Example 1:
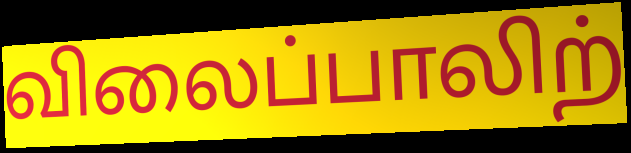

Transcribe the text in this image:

விலைப்பாலிற்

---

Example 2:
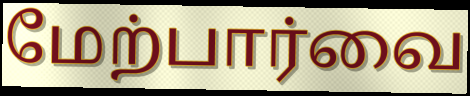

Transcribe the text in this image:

மேற்பார்வை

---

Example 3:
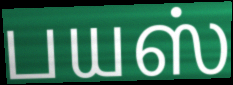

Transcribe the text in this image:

பயஸ்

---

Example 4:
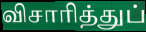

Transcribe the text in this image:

விசாரித்துப்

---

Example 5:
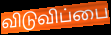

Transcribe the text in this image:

விடுவிப்பை